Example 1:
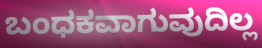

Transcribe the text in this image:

ಬಂಧಕವಾಗುವುದಿಲ್ಲ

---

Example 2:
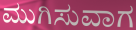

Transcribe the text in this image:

ಮುಗಿಸುವಾಗ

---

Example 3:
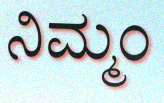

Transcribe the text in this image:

ನಿಮ್ಮಂ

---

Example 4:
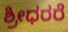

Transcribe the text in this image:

ಶ್ರೀಧರರೆ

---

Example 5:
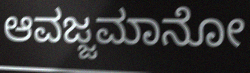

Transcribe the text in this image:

ಆವಜ್ಜಮಾನೋ